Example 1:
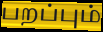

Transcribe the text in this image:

பறப்பும்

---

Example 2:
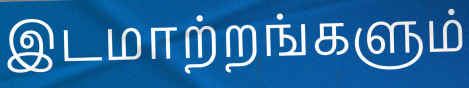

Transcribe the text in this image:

இடமாற்றங்களும்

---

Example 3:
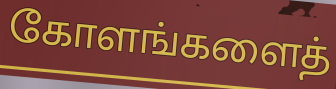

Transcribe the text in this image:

கோளங்களைத்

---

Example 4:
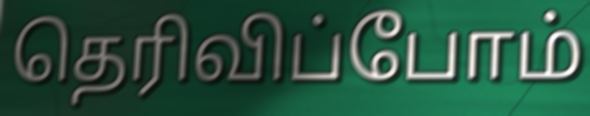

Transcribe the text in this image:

தெரிவிப்போம்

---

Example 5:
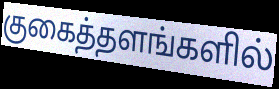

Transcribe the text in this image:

குகைத்தளங்களில்